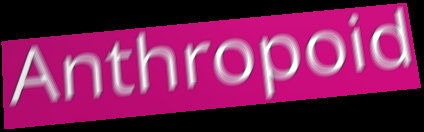
Anthropoid